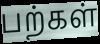
பற்கள்